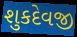
શુકદેવજી